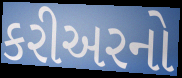
કરીઅરનો